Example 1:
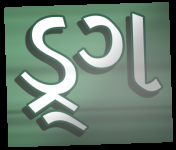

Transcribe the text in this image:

ડ્ર્ગ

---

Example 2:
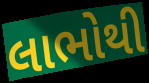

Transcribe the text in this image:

લાભોથી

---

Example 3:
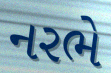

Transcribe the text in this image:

નરભે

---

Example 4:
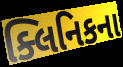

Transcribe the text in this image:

ક્લિનિકના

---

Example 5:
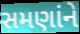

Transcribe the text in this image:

સમણાંને